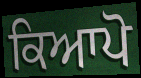
ਕਿਆਪੋ